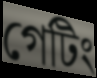
গেটিং